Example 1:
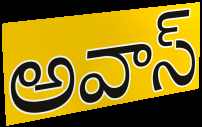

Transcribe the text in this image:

అవాస్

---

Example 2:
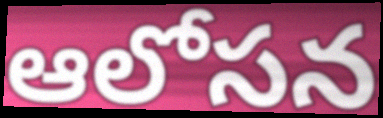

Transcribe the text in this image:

ఆలోసన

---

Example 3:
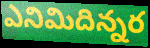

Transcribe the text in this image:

ఎనిమిదిన్నర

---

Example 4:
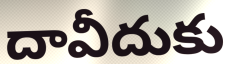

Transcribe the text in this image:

దావీదుకు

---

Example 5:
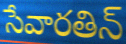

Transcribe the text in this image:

సేవారతిన్